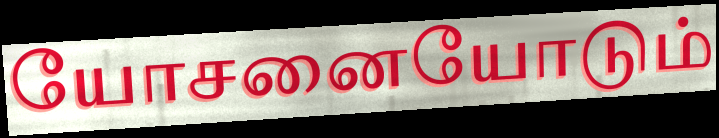
யோசனையோடும்